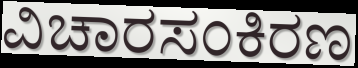
ವಿಚಾರಸಂಕಿರಣ